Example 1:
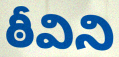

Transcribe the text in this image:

ఠీవిని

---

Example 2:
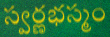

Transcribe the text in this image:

స్వర్ణభస్మం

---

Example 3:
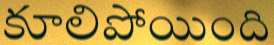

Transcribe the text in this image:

కూలిపోయింది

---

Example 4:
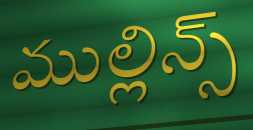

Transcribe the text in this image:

ముల్లిన్స్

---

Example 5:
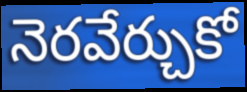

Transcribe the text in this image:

నెరవేర్చుకో